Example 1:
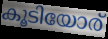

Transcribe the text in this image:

കൂടിയോര്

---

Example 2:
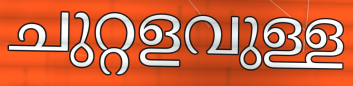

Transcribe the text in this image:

ചുറ്റളവുള്ള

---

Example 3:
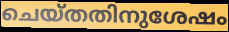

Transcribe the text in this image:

ചെയ്തതിനുശേഷം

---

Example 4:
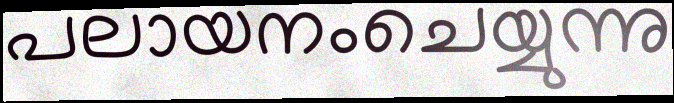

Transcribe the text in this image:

പലായനംചെയ്യുന്നു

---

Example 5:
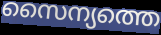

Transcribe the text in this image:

സൈന്യത്തെ